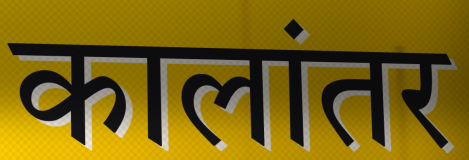
कालांतर